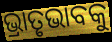
ଭ୍ରାତୃଭାବକୁ